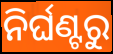
ନିର୍ଘଣ୍ଟରୁ